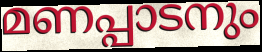
മണപ്പാടനും